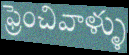
ఫ్రెంచివాళ్ళు